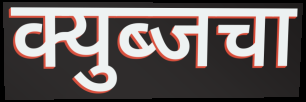
क्युब्जचा